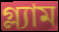
গ্ল্যাম